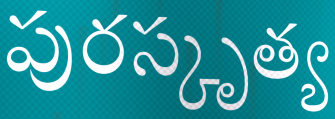
పురస్కృత్య